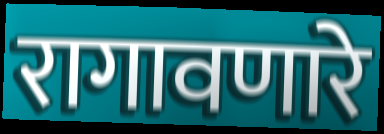
रागावणारे